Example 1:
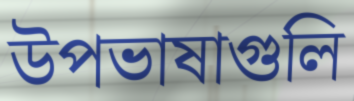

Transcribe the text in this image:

উপভাষাগুলি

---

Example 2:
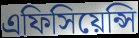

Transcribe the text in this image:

এফিসিয়েন্সি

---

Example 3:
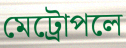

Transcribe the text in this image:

মেট্রোপলে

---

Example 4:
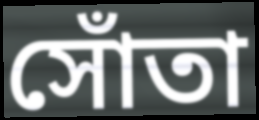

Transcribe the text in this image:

সোঁতা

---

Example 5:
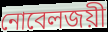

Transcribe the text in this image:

নোবেলজয়ী